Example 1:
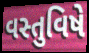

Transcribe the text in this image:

વસ્તુવિષે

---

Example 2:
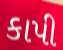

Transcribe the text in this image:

કાપી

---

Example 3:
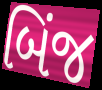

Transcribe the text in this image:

બિંજ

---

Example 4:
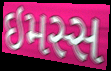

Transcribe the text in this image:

ઇમસ્સ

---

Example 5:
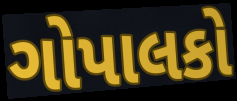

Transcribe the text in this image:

ગોપાલકો